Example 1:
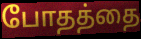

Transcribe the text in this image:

போதத்தை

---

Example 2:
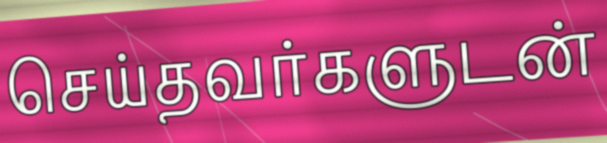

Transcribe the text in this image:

செய்தவர்களுடன்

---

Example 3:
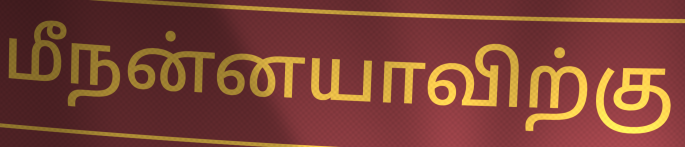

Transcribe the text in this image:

மீநன்னயாவிற்கு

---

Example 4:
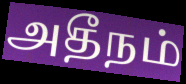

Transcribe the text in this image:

அதீநம்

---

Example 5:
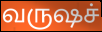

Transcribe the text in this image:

வருஷச்